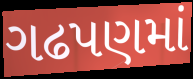
ગઢપણમાં